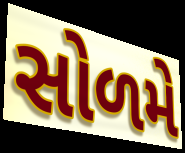
સોળમે